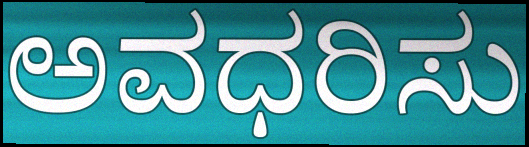
ಅವಧರಿಸು